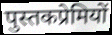
पुस्तकप्रेमियों